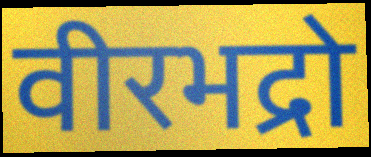
वीरभद्रो